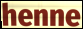
henne